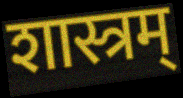
शास्त्रम्